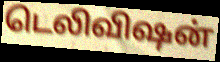
டெலிவிஷன்